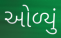
ઓળ્યું